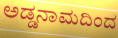
ಅಡ್ಡನಾಮದಿಂದ